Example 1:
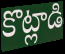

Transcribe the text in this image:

కొట్లాడి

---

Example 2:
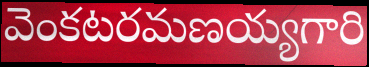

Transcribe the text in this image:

వెంకటరమణయ్యగారి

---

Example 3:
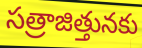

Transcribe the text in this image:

సత్రాజిత్తునకు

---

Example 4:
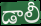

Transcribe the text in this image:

డాలీ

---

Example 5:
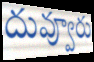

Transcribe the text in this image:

దువ్వూరు